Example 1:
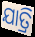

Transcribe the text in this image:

ଯାତ୍ରି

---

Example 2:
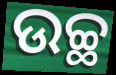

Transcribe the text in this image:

ଉଚ୍ଛ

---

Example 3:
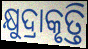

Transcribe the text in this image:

କ୍ଷୁଦ୍ରାକୃତ୍ତି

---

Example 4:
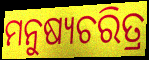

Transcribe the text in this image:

ମନୁଷ୍ୟଚରିତ୍ର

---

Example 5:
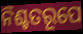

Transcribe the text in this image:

ନିଶ୍ଚତରୂପେ